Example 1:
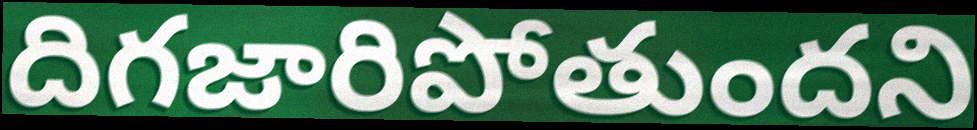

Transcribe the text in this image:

దిగజారిపోతుందని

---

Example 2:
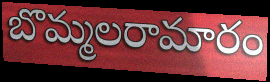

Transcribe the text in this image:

బొమ్మలరామారం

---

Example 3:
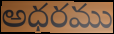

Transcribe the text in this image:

అధరము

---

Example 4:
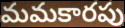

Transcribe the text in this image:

మమకారపు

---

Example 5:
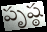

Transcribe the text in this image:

పృష్ఠ